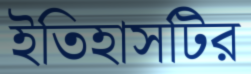
ইতিহাসটির